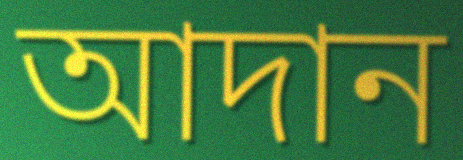
আদান